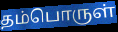
தம்பொருள்